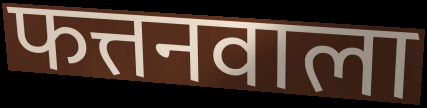
फत्तनवाला